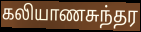
கலியாணசுந்தர